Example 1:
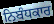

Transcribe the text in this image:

ਨਿਬੰਧਕਾਰ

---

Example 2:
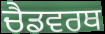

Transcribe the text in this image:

ਚੈਡਵਰਥ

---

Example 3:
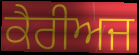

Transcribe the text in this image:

ਕੈਰੀਅਜ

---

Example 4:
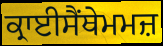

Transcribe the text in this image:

ਕ੍ਰਾਈਸੈਂਥੇਮਮਜ਼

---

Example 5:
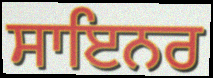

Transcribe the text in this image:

ਸਾਇਨਰ